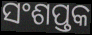
ସଂଶପ୍ତକ